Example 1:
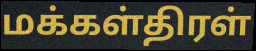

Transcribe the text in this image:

மக்கள்திரள்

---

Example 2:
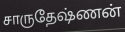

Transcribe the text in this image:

சாருதேஷ்ணன்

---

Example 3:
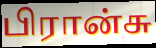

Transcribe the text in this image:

பிரான்சு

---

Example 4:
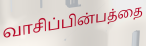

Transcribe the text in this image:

வாசிப்பின்பத்தை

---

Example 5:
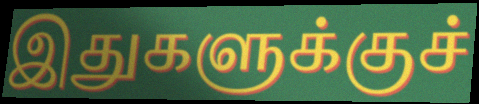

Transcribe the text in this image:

இதுகளுக்குச்